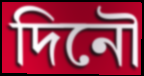
দিনৌ